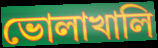
ভোলাখালি